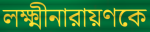
লক্ষ্মীনারায়ণকে